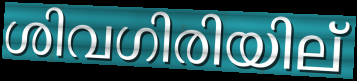
ശിവഗിരിയില്